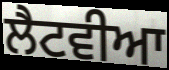
ਲੈਟਵੀਆ